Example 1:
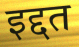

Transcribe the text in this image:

इद्दत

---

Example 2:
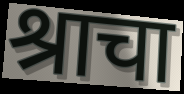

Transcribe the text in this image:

श्राचा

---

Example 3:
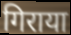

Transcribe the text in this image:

गिराया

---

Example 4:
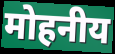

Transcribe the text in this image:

मोहनीय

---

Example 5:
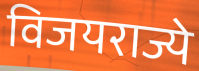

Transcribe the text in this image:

विजयराज्ये